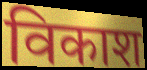
विकाश